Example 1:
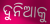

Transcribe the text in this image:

ଦୁନିଆକୁ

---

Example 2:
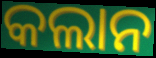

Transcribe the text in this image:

କଲାନ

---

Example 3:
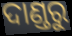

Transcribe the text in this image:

ଦାଣ୍ଡରୁ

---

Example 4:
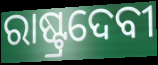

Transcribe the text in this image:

ରାଷ୍ଟ୍ରଦେବୀ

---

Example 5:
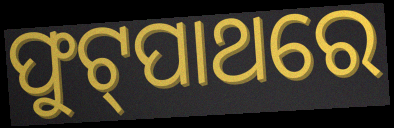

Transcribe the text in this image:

ଫୁଟ୍‍ପାଥରେ